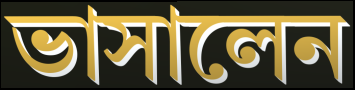
ভাসালেন